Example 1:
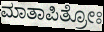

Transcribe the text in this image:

ಮಾತಾಪಿತ್ರೋಃ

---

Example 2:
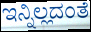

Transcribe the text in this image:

ಇನ್ನಿಲ್ಲದಂತೆ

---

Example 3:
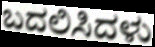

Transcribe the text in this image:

ಬದಲಿಸಿದಳು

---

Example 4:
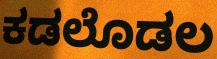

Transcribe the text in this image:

ಕಡಲೊಡಲ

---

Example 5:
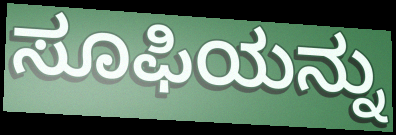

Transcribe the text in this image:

ಸೂಫಿಯನ್ನು